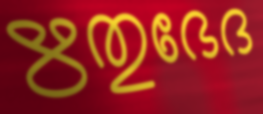
ഋതുഭേദ